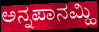
ಅನ್ನಪಾನಮ್ಹಿ